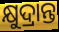
କ୍ଷୁଦ୍ରାନ୍ତ